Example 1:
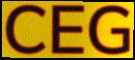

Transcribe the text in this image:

CEG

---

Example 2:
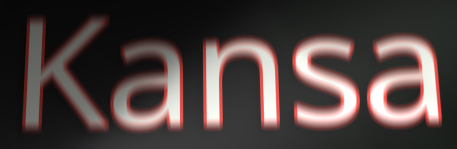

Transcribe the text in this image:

Kansa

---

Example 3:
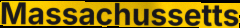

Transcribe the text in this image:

Massachussetts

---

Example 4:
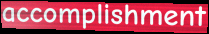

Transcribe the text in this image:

accomplishment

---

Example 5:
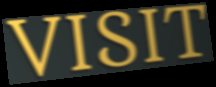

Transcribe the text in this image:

VISIT